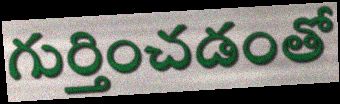
గుర్తించడంతో